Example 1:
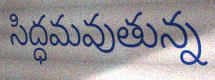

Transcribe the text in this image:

సిద్ధమవుతున్న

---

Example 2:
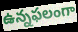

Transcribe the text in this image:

ఉన్నఫలంగా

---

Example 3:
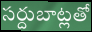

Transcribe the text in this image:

సర్దుబాట్లతో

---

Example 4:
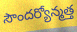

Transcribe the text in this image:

సౌందర్యోన్మత్త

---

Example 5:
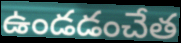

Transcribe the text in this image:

ఉండడంచేత